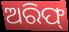
ଅରିଫ୍